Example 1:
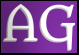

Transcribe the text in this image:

AG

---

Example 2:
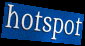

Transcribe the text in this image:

hotspot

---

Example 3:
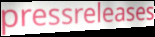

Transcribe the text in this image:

pressreleases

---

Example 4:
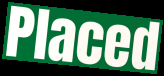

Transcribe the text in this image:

Placed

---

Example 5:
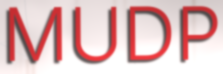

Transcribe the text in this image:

MUDP